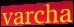
varcha